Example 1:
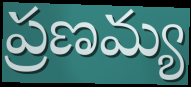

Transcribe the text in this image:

ప్రణమ్య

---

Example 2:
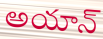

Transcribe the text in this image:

అయాన్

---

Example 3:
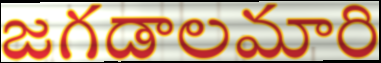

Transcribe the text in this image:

జగడాలమారి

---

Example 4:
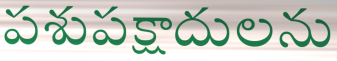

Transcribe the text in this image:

పశుపక్షాదులను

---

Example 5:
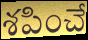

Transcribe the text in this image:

శపించే